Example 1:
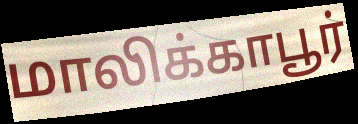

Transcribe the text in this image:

மாலிக்காபூர்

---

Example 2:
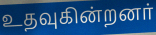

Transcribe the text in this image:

உதவுகின்றனர்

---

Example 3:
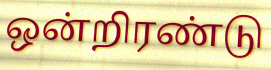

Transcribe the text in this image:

ஒன்றிரண்டு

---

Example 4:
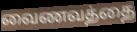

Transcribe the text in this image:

வைணவத்தை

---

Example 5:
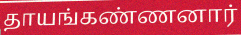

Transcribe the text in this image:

தாயங்கண்ணனார்